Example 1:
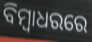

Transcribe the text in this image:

ବିମ୍ୱାଧରରେ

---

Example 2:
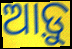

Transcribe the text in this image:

ଆଡ଼ୁ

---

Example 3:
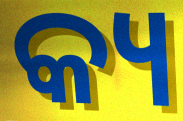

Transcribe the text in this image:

କ୍ୟ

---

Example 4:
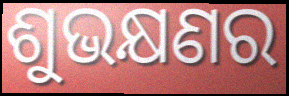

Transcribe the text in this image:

ଶୁଭକ୍ଷଣର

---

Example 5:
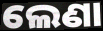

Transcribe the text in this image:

ଲେଣା